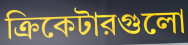
ক্রিকেটারগুলো